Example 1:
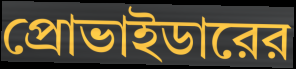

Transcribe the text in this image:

প্রোভাইডারের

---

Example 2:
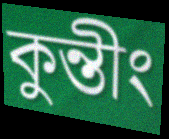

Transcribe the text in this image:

কুন্তীং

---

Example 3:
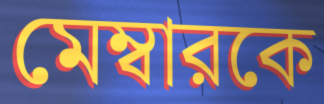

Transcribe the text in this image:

মেম্বারকে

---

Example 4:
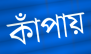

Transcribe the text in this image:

কাঁপায়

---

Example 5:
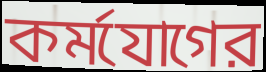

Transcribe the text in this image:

কর্মযোগের